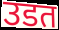
उडत